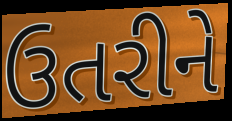
ઉતરીને